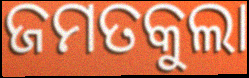
ଜମତକୁଲା